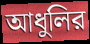
আধুলির